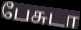
பேசுடா